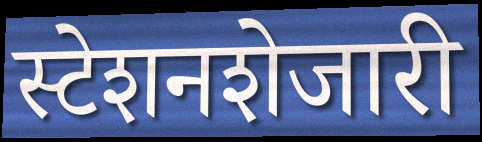
स्टेशनशेजारी